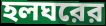
হলঘরের